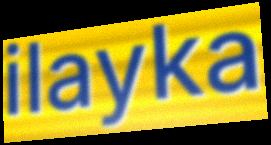
ilayka